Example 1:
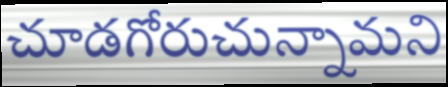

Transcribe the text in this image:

చూడగోరుచున్నామని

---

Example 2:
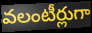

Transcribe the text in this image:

వలంటీర్లుగా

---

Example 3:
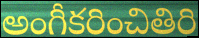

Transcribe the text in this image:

అంగీకరించితిరి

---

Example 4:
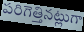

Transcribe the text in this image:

పరిగెత్తినట్లుగా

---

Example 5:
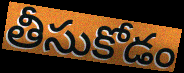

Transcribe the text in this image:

తీసుకోడం